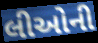
લીઓની